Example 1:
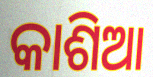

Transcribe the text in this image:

କାଶିଆ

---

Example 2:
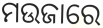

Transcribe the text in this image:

ମଉଜାରେ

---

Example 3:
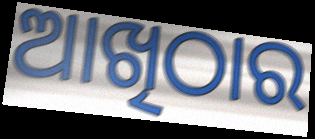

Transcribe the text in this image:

ଆଖିଠାର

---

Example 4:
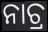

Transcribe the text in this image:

ନାଚ୍ର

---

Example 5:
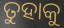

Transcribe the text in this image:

ତୁହାକୁ